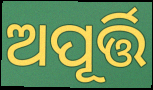
ଅପୂର୍ତ୍ତି